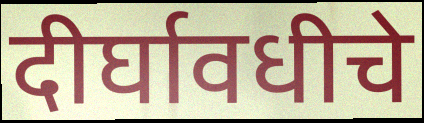
दीर्घावधीचे